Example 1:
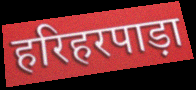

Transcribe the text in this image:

हरिहरपाड़ा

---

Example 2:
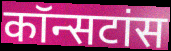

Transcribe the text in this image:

कॉन्सटांस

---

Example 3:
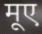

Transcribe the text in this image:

मूए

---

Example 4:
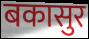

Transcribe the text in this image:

बकासुर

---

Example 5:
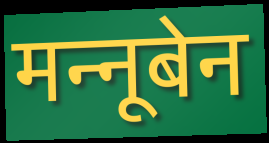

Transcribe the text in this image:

मन्नूबेन